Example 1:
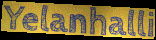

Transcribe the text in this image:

Yelanhalli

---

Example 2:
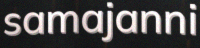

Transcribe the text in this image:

samajanni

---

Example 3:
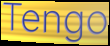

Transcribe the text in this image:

Tengo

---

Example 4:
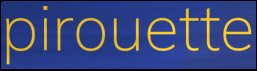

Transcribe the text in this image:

pirouette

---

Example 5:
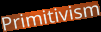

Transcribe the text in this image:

Primitivism